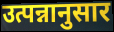
उत्पन्नानुसार